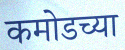
कमोडच्या